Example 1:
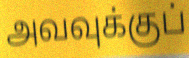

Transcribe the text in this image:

அவவுக்குப்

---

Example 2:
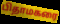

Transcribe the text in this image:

பிதாமகரை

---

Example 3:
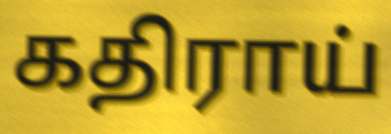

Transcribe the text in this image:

கதிராய்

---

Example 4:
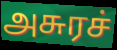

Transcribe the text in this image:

அசுரச்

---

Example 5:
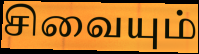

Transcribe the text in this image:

சிவையும்